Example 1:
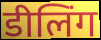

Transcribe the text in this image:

डीलिंग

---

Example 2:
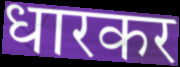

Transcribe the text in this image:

धारकर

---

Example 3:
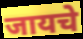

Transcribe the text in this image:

जायचे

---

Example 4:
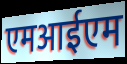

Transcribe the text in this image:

एमआईएम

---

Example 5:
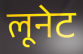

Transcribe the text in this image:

लूनेट